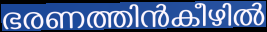
ഭരണത്തിൻകീഴിൽ